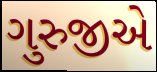
ગુરુજીએ